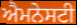
ਐਮਨੇਸਟੀ